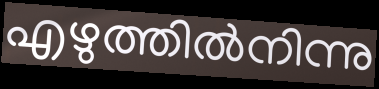
എഴുത്തിൽനിന്നു